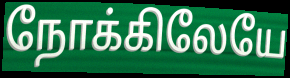
நோக்கிலேயே